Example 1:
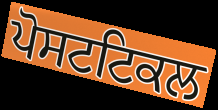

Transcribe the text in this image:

ਪੋਸਟਟਿਕਲ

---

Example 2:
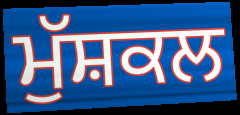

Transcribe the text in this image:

ਮੁੱਸ਼ਕਲ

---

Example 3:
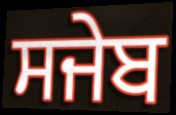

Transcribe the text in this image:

ਸਜੇਬ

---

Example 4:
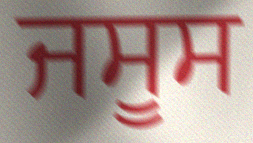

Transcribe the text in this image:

ਜਸੂਸ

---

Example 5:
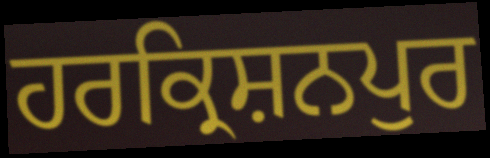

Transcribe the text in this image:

ਹਰਕ੍ਰਿਸ਼ਨਪੁਰ